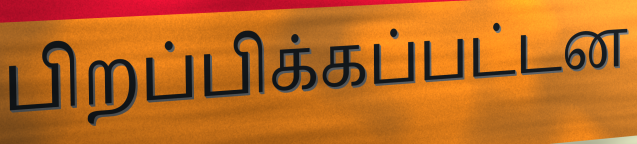
பிறப்பிக்கப்பட்டன